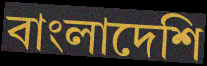
বাংলাদেশি